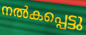
നൽകപ്പെട്ടു